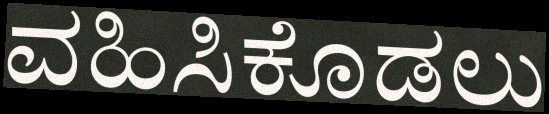
ವಹಿಸಿಕೊಡಲು